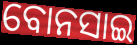
ବୋନସାଇ